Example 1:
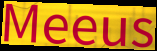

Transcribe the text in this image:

Meeus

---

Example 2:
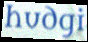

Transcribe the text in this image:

hudgi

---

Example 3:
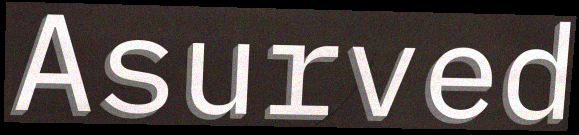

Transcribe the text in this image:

Asurved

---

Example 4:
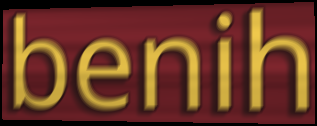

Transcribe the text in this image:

benih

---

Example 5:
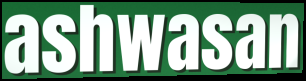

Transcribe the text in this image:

ashwasan